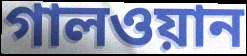
গালওয়ান